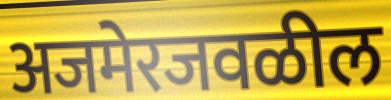
अजमेरजवळील